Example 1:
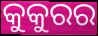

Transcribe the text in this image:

କୁକୁରର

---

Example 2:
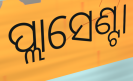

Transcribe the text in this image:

ପ୍ଲାସେଣ୍ଟା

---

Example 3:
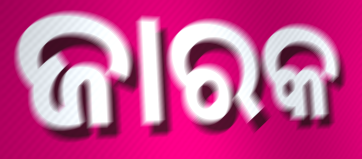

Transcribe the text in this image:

ଜାରକ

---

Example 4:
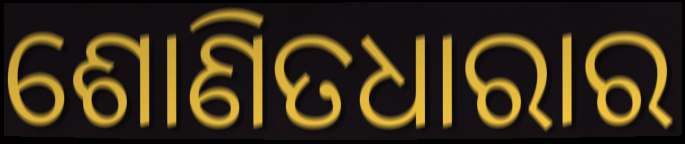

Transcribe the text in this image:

ଶୋଣିତଧାରାର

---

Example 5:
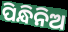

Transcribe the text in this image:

ପିନ୍ଧିନିଅ